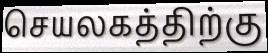
செயலகத்திற்கு